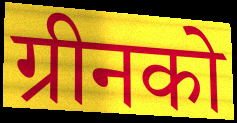
ग्रीनको